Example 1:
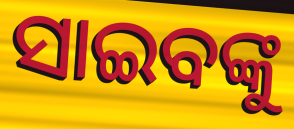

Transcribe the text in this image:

ସାଇବଙ୍କୁ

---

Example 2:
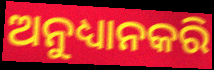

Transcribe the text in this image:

ଅନୁଧ୍ୟାନକରି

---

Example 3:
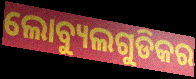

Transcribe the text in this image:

ଲୋବ୍ୟୁଲଗୁଡିକର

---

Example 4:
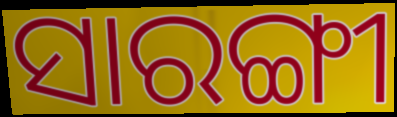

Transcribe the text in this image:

ସାରଙ୍ଗୀ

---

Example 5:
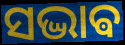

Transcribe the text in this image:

ସଦ୍ଭାଵ